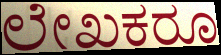
ಲೇಖಕರೂ